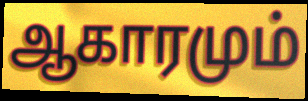
ஆகாரமும்